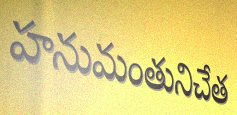
హనుమంతునిచేత